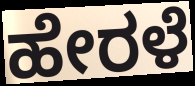
ಹೇರಳೆ